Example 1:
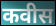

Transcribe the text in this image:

कवीस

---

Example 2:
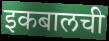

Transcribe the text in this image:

इकबालची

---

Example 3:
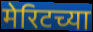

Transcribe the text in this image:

मेरिटच्या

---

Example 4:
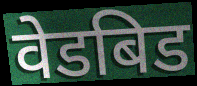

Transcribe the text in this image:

वेडबिड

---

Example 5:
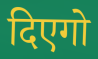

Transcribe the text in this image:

दिएगो